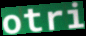
otri